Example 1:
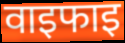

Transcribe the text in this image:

वाइफाइ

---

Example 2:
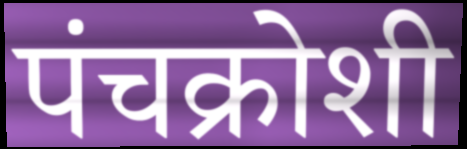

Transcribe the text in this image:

पंचक्रोशी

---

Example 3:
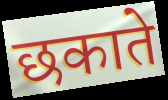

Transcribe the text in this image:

छकाते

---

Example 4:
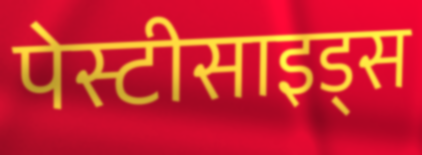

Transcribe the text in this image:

पेस्टीसाइड्स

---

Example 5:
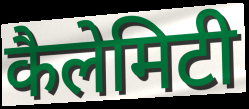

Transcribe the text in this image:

कैलेमिटी